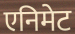
एनिमेट